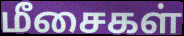
மீசைகள்